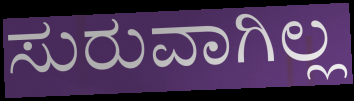
ಸುರುವಾಗಿಲ್ಲ